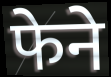
फेने